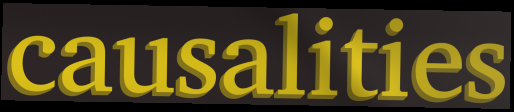
causalities